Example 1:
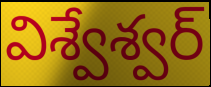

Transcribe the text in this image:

విశ్వేశ్వర్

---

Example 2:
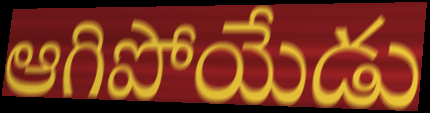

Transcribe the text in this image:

ఆగిపోయేడు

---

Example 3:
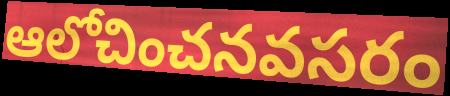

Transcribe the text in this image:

ఆలోచించనవసరం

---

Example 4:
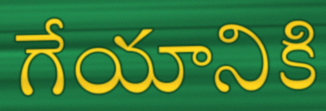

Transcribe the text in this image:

గేయానికి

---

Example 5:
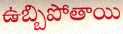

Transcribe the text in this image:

ఉబ్బిపోతాయి